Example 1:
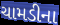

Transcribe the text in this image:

ચામડીના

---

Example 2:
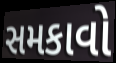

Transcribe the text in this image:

સમકાવો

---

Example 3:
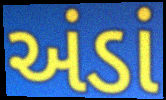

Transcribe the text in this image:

અંડાં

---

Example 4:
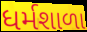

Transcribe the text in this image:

ધર્મશાળા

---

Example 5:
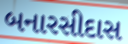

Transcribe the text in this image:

બનારસીદાસ